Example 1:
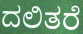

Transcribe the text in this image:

ದಲಿತರೆ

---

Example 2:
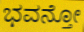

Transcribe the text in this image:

ಭವನ್ತೋ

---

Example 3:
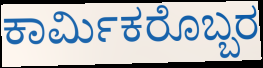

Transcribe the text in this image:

ಕಾರ್ಮಿಕರೊಬ್ಬರ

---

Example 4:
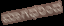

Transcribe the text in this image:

ಮಾಗಧರಿಂದ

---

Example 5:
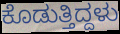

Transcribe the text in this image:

ಕೊಡುತ್ತಿದ್ದಳು